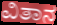
ವಿತಾನ